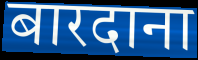
बारदाना